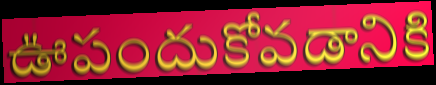
ఊపందుకోవడానికి